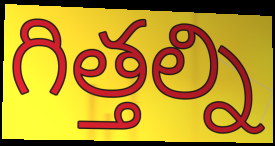
గిత్తల్ని